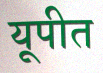
यूपीत